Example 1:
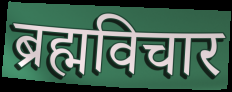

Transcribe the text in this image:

ब्रह्मविचार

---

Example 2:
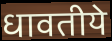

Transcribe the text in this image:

धावतीये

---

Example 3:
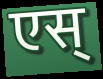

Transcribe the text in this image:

एस्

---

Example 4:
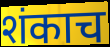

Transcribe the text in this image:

शंकाच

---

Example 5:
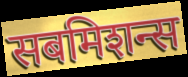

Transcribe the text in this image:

सबमिशन्स